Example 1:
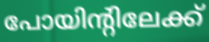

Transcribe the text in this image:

പോയിന്റിലേക്ക്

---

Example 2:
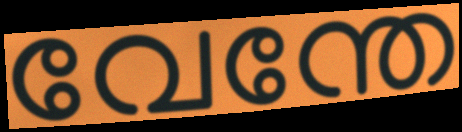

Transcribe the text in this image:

വേന്തേ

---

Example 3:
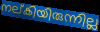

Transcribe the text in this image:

നല്കിയിരുന്നില്ല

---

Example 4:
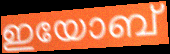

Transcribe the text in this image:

ഇയോബ്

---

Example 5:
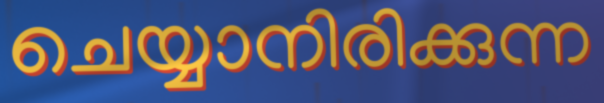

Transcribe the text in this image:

ചെയ്യാനിരിക്കുന്ന